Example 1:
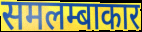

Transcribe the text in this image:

समलम्बाकार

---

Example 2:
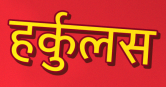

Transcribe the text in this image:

हर्कुलस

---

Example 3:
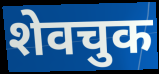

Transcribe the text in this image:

शेवचुक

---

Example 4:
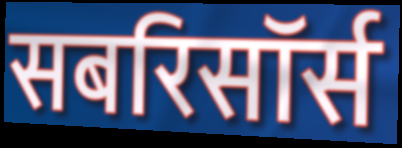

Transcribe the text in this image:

सबरिसॉर्स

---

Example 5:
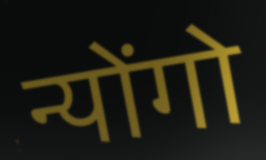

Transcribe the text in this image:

न्योंगो